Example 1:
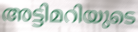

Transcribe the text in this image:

അട്ടിമറിയുടെ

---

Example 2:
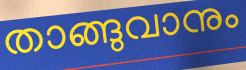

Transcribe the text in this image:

താങ്ങുവാനും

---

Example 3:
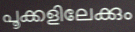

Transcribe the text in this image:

പൂക്കളിലേക്കും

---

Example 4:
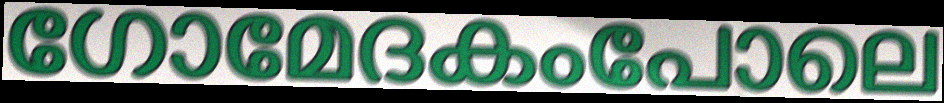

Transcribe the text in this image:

ഗോമേദകംപോലെ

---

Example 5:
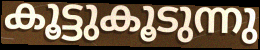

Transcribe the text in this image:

കൂട്ടുകൂടുന്നു